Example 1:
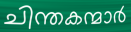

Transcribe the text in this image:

ചിന്തകന്മാർ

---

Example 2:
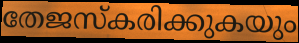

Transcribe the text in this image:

തേജസ്കരിക്കുകയും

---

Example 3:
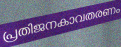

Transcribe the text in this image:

പ്രതിജനകാവതരണം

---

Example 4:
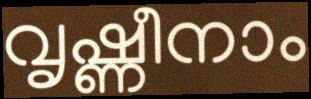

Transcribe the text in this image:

വൃഷ്ണീനാം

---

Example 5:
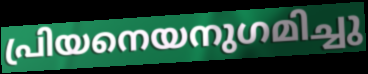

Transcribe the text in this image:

പ്രിയനെയനുഗമിച്ചു